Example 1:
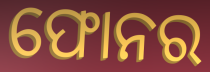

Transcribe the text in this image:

ଫୋନର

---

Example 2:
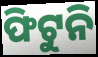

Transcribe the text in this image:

ଫିଟୁନି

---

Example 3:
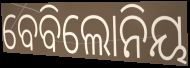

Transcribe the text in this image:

ବେବିଲୋନିୟ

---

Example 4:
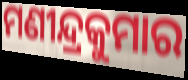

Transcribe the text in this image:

ମଣୀନ୍ଦ୍ରକୁମାର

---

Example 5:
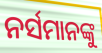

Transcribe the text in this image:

ନର୍ସମାନଙ୍କୁ